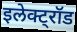
इलेक्ट्रॉड